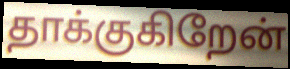
தாக்குகிறேன்